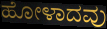
ಹೋಳಾದವು